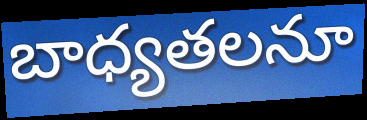
బాధ్యతలనూ